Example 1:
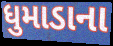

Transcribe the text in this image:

ધુમાડાના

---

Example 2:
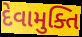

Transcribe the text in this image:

દેવામુક્તિ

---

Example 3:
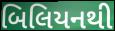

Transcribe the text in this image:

બિલિયનથી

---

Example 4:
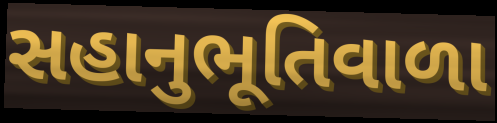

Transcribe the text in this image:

સહાનુભૂતિવાળા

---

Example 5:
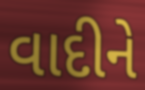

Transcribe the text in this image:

વાદીને